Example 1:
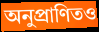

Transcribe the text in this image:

অনুপ্রাণিতও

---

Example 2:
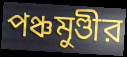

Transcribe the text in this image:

পঞ্চমুণ্ডীর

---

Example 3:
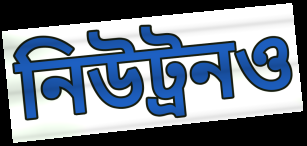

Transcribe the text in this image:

নিউট্রনও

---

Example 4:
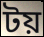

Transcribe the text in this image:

টয়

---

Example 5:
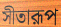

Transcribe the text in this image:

সীতারূপ